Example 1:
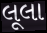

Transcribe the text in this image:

લૂલા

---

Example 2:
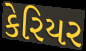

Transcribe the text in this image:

કેરિયર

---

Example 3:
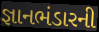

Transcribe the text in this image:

જ્ઞાનભંડારની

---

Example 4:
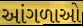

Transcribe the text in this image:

આંગળાઓ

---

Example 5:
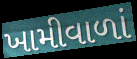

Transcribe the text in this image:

ખામીવાળાં